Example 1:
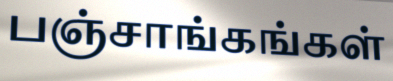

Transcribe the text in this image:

பஞ்சாங்கங்கள்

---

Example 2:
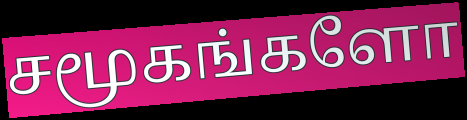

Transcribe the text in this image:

சமூகங்களோ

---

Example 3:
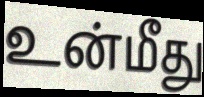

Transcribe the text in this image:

உன்மீது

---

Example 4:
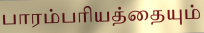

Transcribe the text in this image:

பாரம்பரியத்தையும்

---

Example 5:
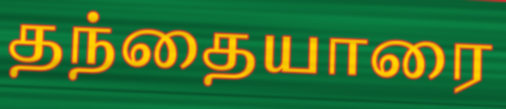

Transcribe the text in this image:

தந்தையாரை